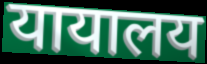
यायालय